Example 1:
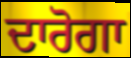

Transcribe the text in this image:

ਦਾਰੋਗਾ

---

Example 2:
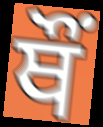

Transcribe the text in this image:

ਥੌਂ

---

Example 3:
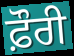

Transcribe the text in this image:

ਫ਼ੌਰੀ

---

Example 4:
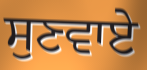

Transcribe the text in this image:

ਸੁਣਵਾਏ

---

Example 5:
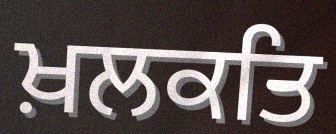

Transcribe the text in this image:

ਖ਼ਲਕਤਿ